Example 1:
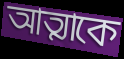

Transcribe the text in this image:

আত্মাকে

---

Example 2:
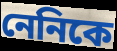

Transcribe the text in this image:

নেনিকে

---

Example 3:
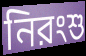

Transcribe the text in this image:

নিরংশু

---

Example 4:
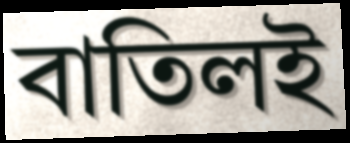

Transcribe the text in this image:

বাতিলই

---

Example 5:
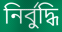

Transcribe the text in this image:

নির্বুদ্ধি